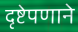
दृष्टेपणाने